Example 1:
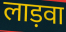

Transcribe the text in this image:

लाड़वा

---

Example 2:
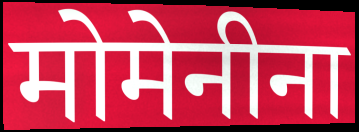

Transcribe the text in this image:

मोमेनीना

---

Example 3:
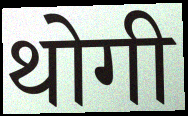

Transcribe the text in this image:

थोगी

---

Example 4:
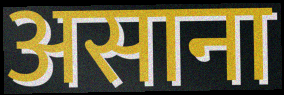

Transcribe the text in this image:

असाना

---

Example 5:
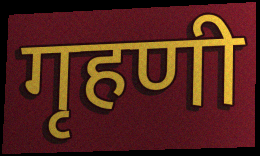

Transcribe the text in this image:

गृहणी